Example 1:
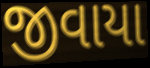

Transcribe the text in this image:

જીવાયા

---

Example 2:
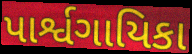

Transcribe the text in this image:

પાર્શ્વગાયિકા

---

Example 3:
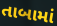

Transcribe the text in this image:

તાબામાં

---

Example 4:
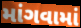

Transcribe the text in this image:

માંગવામાં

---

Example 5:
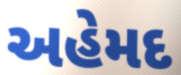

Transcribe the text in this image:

અહેમદ